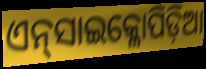
ଏନ୍‌ସାଇକ୍ଳୋପିଡ଼ିଆ